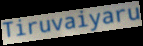
Tiruvaiyaru